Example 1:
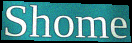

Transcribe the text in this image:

Shome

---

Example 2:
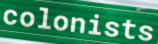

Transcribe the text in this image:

colonists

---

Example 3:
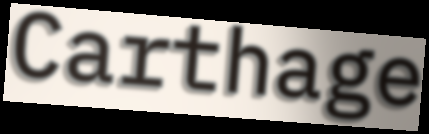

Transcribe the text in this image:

Carthage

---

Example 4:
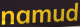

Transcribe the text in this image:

namud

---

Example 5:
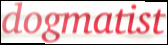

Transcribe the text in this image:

dogmatist